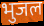
भुजल